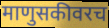
माणुसकीवरच